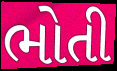
ભોતી